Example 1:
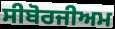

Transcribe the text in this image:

ਸੀਬੋਰਜੀਅਮ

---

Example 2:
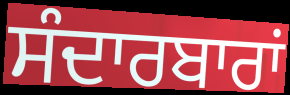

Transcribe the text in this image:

ਸੰਦਾਰਬਾਰਾਂ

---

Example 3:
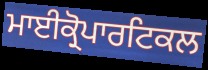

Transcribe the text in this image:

ਮਾਈਕ੍ਰੋਪਾਰਟਿਕਲ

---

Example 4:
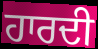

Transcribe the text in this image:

ਹਾਰਦੀ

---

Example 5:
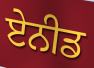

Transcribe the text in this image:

ਏਨੀਡ